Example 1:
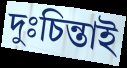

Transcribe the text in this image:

দুঃচিন্তাই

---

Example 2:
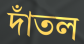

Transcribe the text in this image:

দাঁতল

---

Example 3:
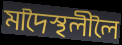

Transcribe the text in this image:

মাদৈস্থলীলৈ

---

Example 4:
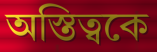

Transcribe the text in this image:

অস্তিত্বকে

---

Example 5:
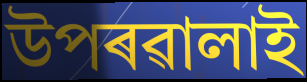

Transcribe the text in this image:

উপৰৱালাই